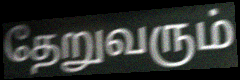
தேறுவரும்